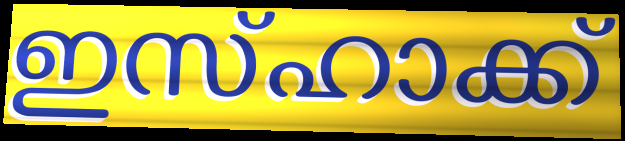
ഇസ്ഹാക്ക്